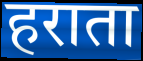
हराता